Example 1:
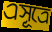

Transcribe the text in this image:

এসূত্রে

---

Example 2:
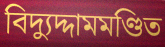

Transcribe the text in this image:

বিদ্যুদ্দামমণ্ডিত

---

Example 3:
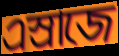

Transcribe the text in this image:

এস্রাজে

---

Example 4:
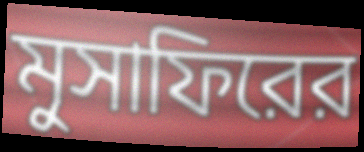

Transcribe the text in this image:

মুসাফিরের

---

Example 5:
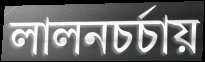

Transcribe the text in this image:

লালনচর্চায়